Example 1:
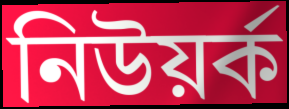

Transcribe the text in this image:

নিউয়ৰ্ক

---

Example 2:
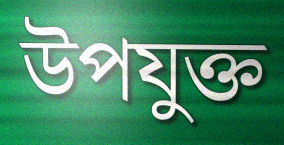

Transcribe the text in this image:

উপযুক্ত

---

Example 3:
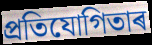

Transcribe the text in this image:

প্ৰতিযোগিতাৰ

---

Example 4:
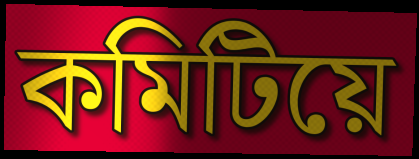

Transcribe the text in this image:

কমিটিয়ে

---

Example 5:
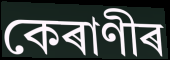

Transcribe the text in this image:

কেৰাণীৰ